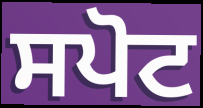
ਸਪੋਟ